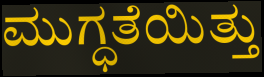
ಮುಗ್ಧತೆಯಿತ್ತು